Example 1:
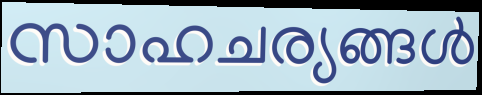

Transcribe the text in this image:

സാഹചര്യങ്ങൾ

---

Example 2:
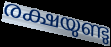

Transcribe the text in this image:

രക്ഷയുണ്ടു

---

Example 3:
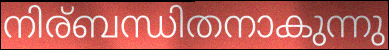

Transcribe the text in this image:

നിര്ബന്ധിതനാകുന്നു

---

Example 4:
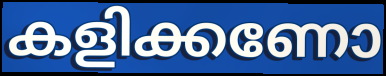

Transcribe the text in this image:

കളിക്കണോ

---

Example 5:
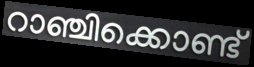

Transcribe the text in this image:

റാഞ്ചിക്കൊണ്ട്